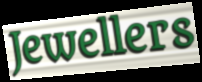
Jewellers